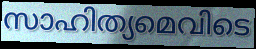
സാഹിത്യമെവിടെ